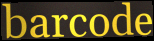
barcode